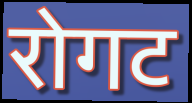
रोगट